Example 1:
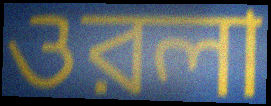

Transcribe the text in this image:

ওরলা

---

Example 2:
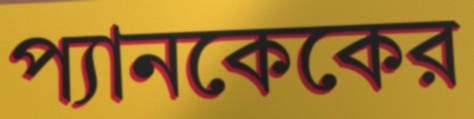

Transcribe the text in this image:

প্যানকেকের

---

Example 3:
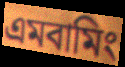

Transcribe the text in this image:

এমবামিং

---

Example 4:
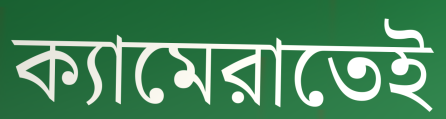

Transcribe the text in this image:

ক্যামেরাতেই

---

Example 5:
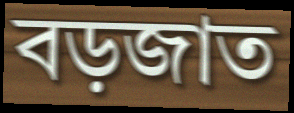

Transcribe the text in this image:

বড়জাত